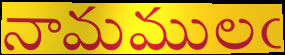
నామములఁ